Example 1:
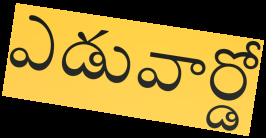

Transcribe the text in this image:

ఎడువార్డో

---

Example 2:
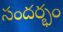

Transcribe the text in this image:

సందర్భం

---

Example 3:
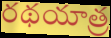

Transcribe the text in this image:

రథయాత్ర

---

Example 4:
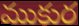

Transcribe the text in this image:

ముకుర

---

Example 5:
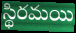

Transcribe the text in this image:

స్థిరమయి